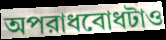
অপরাধবোধটাও